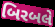
બિરબલે